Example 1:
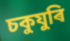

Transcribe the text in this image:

চকুযুৰি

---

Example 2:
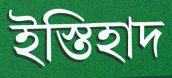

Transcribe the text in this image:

ইস্তিহাদ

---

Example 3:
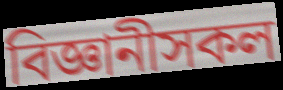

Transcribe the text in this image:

বিজ্ঞানীসকল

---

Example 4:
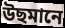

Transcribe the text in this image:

উছমানে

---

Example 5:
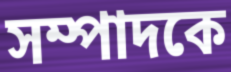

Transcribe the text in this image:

সম্পাদকে